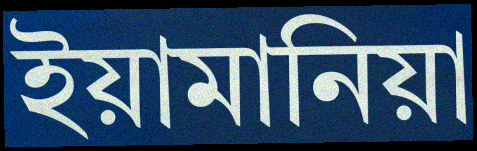
ইয়ামানিয়া